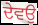
ਦੇਵਉ